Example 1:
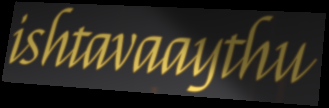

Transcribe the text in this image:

ishtavaaythu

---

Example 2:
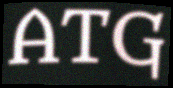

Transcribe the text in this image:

ATG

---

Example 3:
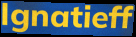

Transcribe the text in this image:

Ignatieff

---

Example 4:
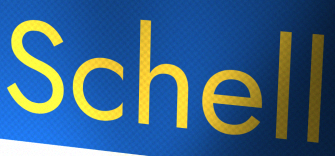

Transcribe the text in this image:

Schell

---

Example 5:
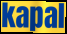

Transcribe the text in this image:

kapal